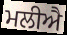
ਮਲੀਐ